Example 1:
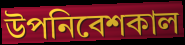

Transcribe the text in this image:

উপনিবেশকাল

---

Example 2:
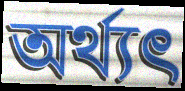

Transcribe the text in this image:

অর্থ্যৎ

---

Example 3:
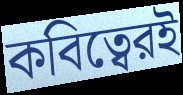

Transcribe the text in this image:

কবিত্বেরই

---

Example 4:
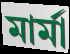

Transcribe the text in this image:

মার্মা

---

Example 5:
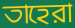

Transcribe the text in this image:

তাহেরা